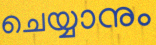
ചെയ്യാനും